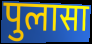
पुलासा